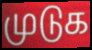
முடுக